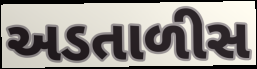
અડતાળીસ